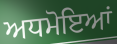
ਅਧਮੋਇਆਂ